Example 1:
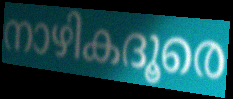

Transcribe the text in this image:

നാഴികദൂരെ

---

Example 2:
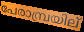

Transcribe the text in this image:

പേരാമ്പ്രയില്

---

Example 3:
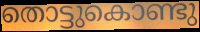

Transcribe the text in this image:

തൊട്ടുകൊണ്ടു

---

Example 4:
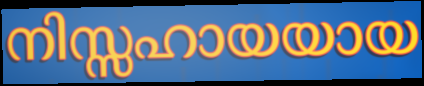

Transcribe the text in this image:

നിസ്സഹായയായ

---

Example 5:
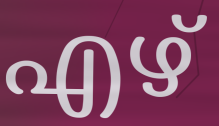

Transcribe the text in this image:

എഴ്